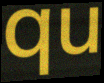
qu